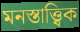
মনস্তাত্ত্বিক